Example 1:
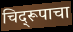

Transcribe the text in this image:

चिद्‌रूपाचा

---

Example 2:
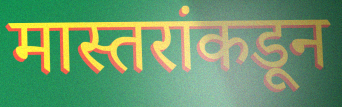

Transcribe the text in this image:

मास्तरांकडून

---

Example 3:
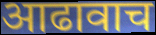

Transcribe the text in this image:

आढावाच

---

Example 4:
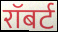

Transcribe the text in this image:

रॉबर्ट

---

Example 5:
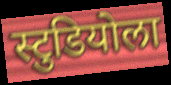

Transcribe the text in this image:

स्टुडियोला